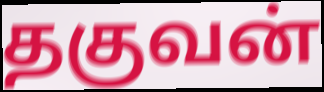
தகுவன்